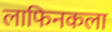
लाफिनकला